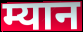
म्यान